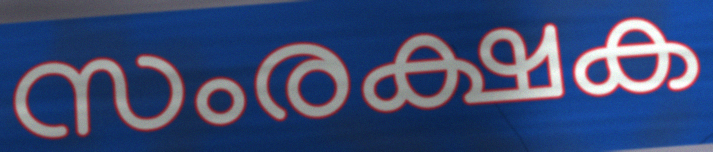
സംരക്ഷക